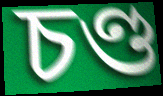
চণ্ড